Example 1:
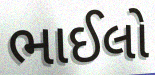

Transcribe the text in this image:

ભાઈલો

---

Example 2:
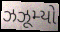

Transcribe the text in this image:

ઝઝૂમ્યો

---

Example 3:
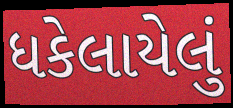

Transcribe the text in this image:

ધકેલાયેલું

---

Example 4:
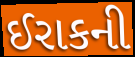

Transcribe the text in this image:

ઈરાકની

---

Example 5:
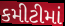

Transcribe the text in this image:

કમીટીમાં